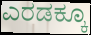
ಎರಡಕ್ಕೂ